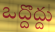
ఒద్దొద్దు